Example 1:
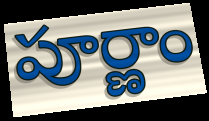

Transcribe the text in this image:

పూర్ణాం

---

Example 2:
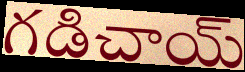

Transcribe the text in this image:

గడిచాయ్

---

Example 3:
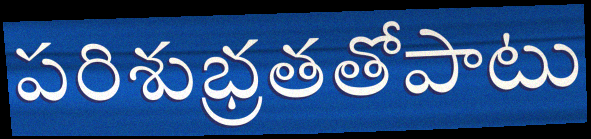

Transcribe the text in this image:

పరిశుభ్రతతోపాటు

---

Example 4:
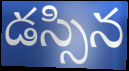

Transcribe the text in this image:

డస్సిన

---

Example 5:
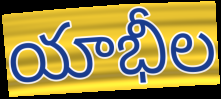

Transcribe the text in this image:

యాభీల